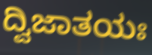
ದ್ವಿಜಾತಯಃ